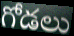
గోడలు